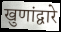
खुणांद्वारे